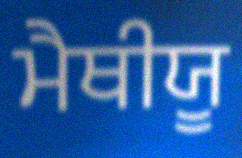
ਮੈਥੀਯੂ